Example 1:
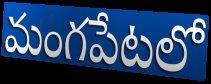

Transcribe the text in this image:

మంగపేటలో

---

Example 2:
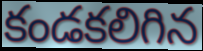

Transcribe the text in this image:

కండకలిగిన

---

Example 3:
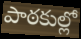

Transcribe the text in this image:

పాఠకుల్లో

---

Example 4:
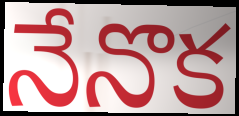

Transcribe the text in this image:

నేనొక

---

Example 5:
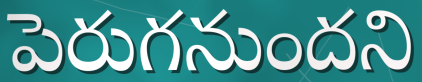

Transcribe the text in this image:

పెరుగనుందని